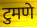
टुमणे